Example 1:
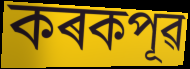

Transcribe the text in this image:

কৰকপূৱ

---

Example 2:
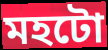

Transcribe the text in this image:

মহটো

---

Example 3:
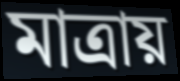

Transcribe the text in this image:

মাত্ৰায়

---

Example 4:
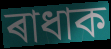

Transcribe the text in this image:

ৰাধাক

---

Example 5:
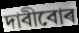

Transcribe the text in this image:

দাবীবোৰ